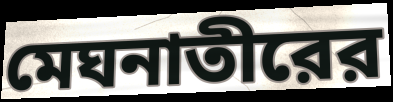
মেঘনাতীরের